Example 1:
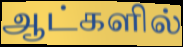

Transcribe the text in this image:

ஆட்களில்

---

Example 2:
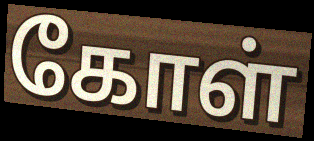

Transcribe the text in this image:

கோள்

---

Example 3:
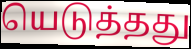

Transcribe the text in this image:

யெடுத்தது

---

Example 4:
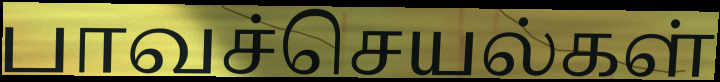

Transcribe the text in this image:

பாவச்செயல்கள்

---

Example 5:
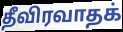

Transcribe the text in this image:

தீவிரவாதக்